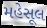
મહેસૂલ